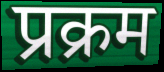
प्रक्रम